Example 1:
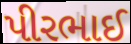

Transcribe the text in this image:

પીરભાઈ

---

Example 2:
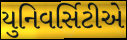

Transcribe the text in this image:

યુનિવર્સિટીએ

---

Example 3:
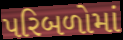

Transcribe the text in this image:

પરિબળોમાં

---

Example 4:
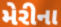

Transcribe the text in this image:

મેરીના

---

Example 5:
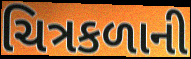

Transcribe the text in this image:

ચિત્રકળાની